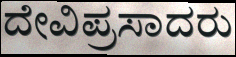
ದೇವಿಪ್ರಸಾದರು